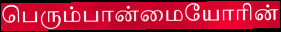
பெரும்பான்மையோரின்